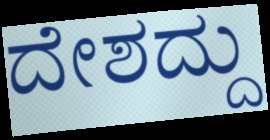
ದೇಶದ್ದು